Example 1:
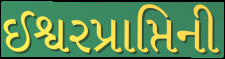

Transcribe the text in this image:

ઈશ્વરપ્રાપ્તિની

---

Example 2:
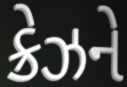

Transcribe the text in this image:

ક્રેઝને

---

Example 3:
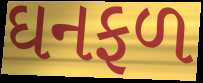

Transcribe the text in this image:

ઘનફળ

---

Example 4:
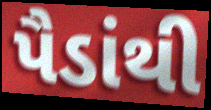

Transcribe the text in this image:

પૈડાંથી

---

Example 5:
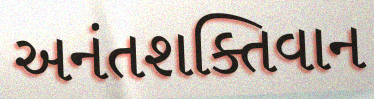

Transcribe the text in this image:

અનંતશક્તિવાન